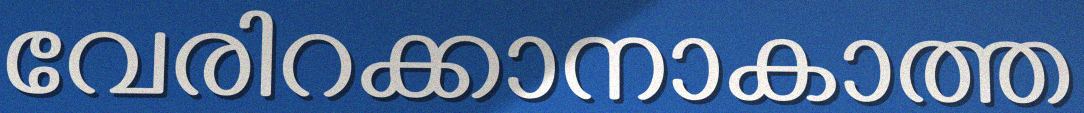
വേരിറക്കാനാകാത്ത